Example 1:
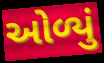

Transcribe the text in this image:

ઓળ્યું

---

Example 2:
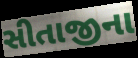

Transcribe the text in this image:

સીતાજીના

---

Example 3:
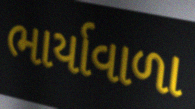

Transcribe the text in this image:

ભાર્યાવાળા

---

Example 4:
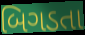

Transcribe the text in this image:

બિગડતા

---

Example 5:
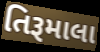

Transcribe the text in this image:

તિરૂમાલા